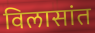
विलासांत